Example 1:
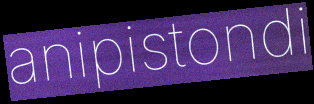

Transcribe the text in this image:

anipistondi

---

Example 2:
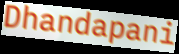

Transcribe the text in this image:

Dhandapani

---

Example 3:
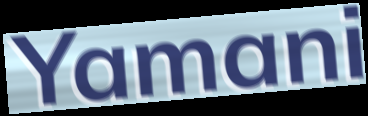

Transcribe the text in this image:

Yamani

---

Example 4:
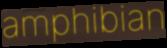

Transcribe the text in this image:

amphibian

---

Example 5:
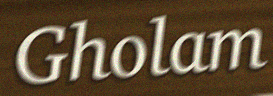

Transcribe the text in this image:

Gholam